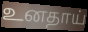
உனதாய்